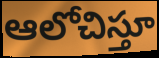
ఆలోచిస్తూ